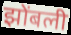
झोंबली